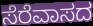
ಸೆರೆವಾಸದ